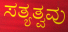
ಸತ್ಯತ್ವವು